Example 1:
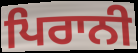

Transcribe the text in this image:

ਪਿਰਾਨੀ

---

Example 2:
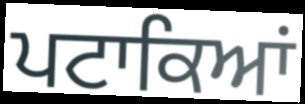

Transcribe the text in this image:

ਪਟਾਕਿਆਂ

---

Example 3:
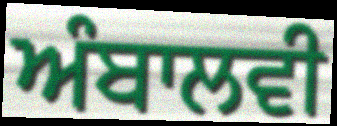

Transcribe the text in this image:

ਅੰਬਾਲਵੀ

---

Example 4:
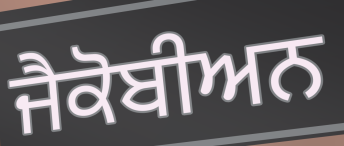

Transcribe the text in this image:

ਜੈਕੋਬੀਅਨ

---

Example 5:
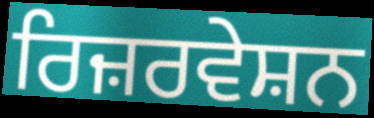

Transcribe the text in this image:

ਰਿਜ਼ਰਵੇਸ਼ਨ